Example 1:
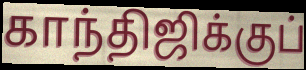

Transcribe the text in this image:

காந்திஜிக்குப்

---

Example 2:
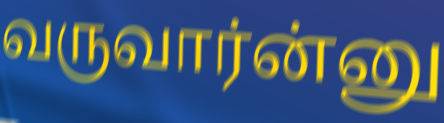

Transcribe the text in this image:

வருவார்ன்னு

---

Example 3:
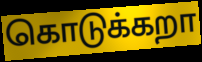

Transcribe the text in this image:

கொடுக்கறா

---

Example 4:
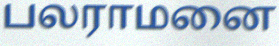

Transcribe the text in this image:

பலராமனை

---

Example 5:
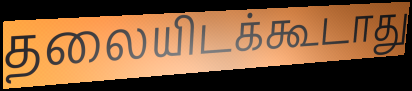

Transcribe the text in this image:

தலையிடக்கூடாது